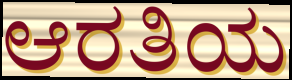
ಆರತಿಯ